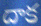
దాక